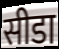
सीडा